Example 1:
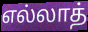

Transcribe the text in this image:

எல்லாத்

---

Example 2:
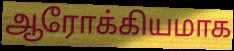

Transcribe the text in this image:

ஆரோக்கியமாக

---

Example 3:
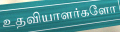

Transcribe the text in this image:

உதவியாளர்களோ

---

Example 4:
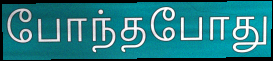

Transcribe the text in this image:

போந்தபோது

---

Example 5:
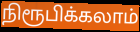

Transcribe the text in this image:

நிரூபிக்கலாம்